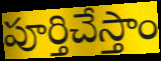
పూర్తిచేస్తాం